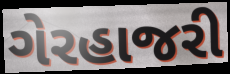
ગેરહાજરી